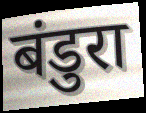
बंडुरा